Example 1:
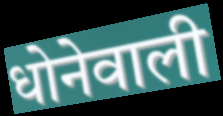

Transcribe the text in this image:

धोनेवाली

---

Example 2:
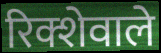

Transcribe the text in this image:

रिक्‍शेवाले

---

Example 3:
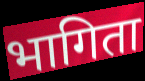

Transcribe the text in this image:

भागिता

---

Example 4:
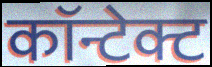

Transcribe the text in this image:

कॉन्टेक्ट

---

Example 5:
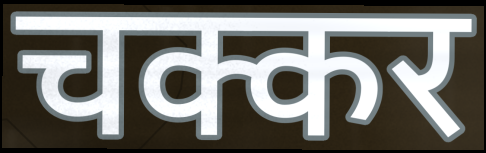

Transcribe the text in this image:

चक्कर